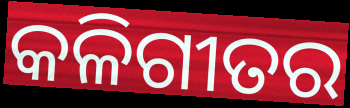
କଳିଗୀତର